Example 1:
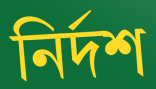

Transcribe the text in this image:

নির্দশ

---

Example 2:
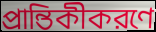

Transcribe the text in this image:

প্রান্তিকীকরণে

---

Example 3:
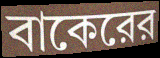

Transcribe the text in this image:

বাকেরের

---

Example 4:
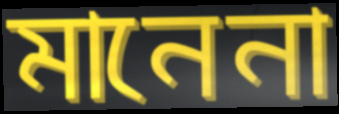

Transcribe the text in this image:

মানেনা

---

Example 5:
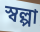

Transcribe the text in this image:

স্বল্পা